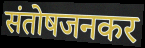
संतोषजनकर